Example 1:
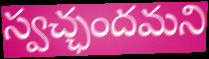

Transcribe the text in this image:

స్వచ్ఛందమని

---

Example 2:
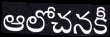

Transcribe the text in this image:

ఆలోచనకీ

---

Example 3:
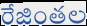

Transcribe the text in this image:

రేజింతల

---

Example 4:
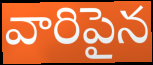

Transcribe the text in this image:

వారిపైన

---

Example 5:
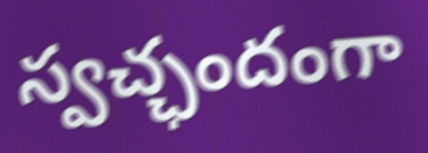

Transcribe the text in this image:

స్వచ్ఛందంగా